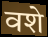
वशे